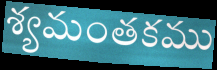
శ్యమంతకము